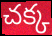
చక్క